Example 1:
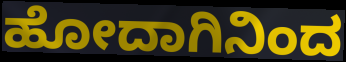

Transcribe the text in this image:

ಹೋದಾಗಿನಿಂದ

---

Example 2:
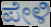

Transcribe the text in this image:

ಪೇಳಿ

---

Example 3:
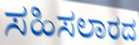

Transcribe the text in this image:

ಸಹಿಸಲಾರದ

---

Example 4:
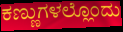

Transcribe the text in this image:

ಕಣ್ಣುಗಳಲ್ಲೊಂದು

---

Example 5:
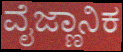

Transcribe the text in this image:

ವೈಜ್ಣಾನಿಕ